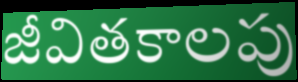
జీవితకాలపు